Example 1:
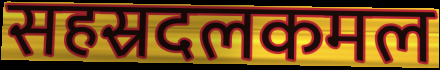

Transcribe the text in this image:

सहस्रदलकमल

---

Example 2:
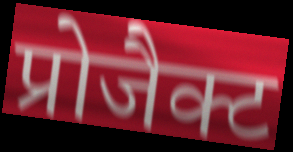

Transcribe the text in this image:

प्रोजैक्ट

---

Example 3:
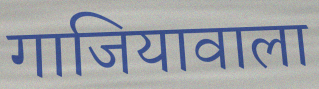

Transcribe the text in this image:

गाजियावाला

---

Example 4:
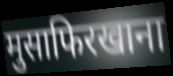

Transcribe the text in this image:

मुसाफिरखाना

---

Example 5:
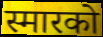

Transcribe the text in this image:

स्मारको